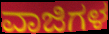
ವಾಜಿಗಳ